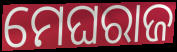
ମେଘରାଜ